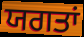
ਯਗਤਾਂ